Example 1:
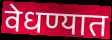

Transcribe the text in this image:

वेधण्यात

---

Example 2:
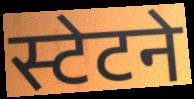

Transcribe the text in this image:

स्टेटने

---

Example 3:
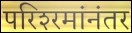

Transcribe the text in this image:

परिश्रमांनंतर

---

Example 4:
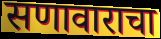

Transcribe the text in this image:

सणावाराचा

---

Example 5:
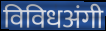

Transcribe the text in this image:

विविधअंगी